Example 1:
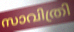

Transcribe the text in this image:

സാവിത്രി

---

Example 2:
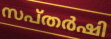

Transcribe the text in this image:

സപ്തർഷി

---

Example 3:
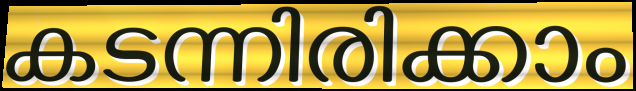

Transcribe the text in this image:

കടന്നിരിക്കാം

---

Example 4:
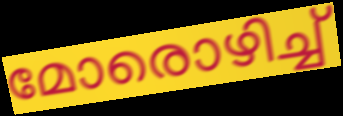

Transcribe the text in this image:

മോരൊഴിച്ച്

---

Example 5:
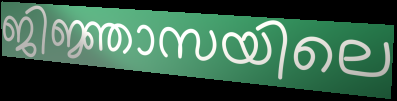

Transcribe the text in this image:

ജിജ്ഞാസയിലെ